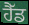
ਹੈੱਡ